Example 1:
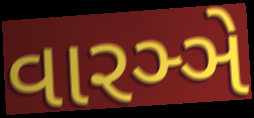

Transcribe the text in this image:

વારઞ્ઞે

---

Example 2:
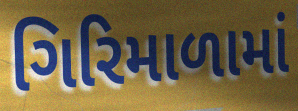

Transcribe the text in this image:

ગિરિમાળામાં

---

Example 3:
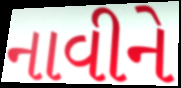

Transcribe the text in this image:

નાવીને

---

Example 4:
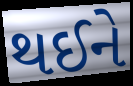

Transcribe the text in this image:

થઈને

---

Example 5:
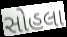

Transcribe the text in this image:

સોહલા